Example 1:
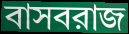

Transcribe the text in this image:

বাসবরাজ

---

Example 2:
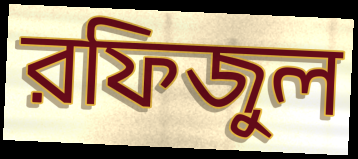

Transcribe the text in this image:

রফিজুল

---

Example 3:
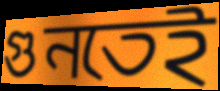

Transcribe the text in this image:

গুনতেই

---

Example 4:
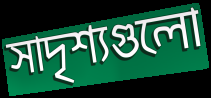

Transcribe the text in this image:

সাদৃশ্যগুলো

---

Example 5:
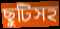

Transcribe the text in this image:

ছুটিসহ